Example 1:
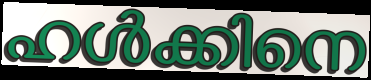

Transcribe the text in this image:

ഹൾക്കിനെ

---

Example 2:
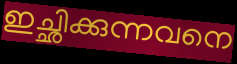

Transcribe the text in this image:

ഇച്ഛിക്കുന്നവനെ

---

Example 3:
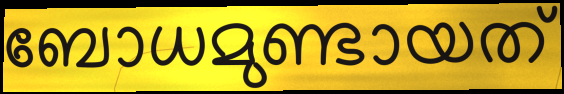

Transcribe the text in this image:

ബോധമുണ്ടായത്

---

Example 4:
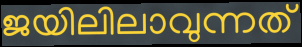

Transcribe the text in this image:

ജയിലിലാവുന്നത്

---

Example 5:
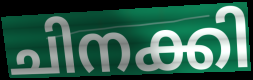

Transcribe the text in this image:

ചിനക്കി